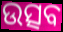
ଉତ୍ସବ